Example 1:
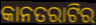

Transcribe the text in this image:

କାନତରାଟିର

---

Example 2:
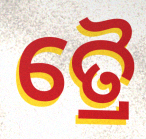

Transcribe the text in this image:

ତ୍ରୈ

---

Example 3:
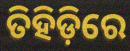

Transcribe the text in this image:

ତିହିଡ଼ିରେ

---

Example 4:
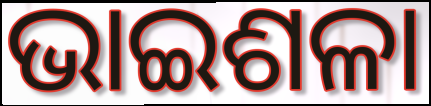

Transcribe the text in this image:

ଭାଇଶଳା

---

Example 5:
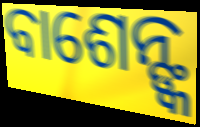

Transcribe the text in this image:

ବାଶେନ୍ଙ୍କ